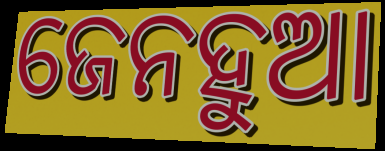
ଜେନହୁଆ